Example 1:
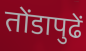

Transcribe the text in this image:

तोंडापुढें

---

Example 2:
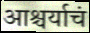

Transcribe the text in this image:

आश्चर्याचं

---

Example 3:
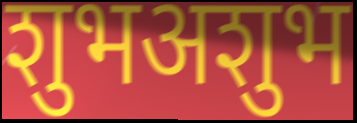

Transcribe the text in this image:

शुभअशुभ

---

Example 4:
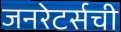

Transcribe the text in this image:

जनरेटर्सची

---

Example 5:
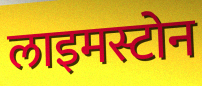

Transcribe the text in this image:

लाइमस्टोन